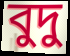
বুদু